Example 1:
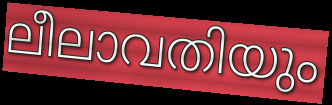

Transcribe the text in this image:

ലീലാവതിയും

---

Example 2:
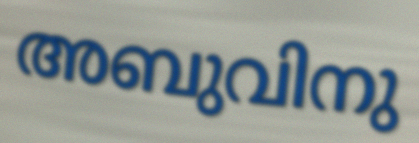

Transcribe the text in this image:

അബുവിനു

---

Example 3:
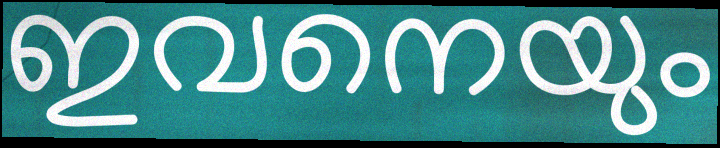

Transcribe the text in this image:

ഇവനെയും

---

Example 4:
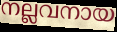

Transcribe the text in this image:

നല്ലവനായ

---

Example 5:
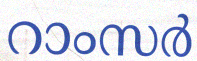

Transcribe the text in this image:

റാംസർ